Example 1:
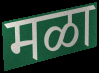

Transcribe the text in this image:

मळा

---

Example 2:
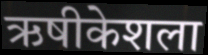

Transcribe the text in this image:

ऋषीकेशला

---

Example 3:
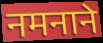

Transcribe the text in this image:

नमनाने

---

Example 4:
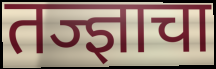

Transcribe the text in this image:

तज्ज्ञाचा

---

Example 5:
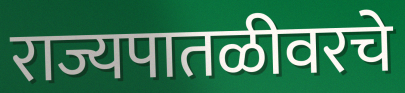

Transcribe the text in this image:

राज्यपातळीवरचे